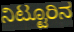
ನಿಟ್ಟೂರಿನ